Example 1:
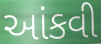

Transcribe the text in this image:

આંકવી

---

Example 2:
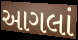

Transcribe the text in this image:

આગલાં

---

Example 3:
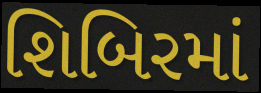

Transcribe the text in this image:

શિબિરમાં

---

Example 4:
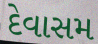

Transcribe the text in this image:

દેવાસમ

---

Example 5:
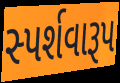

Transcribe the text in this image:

સ્પર્શવારૂપ